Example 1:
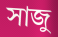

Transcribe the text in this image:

সাজু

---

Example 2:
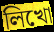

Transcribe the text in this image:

লিখো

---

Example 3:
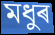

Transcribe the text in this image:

মধুৰ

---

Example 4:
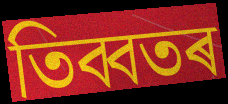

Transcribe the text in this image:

তিব্বতৰ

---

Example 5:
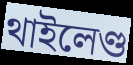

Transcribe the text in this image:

থাইলেণ্ড